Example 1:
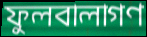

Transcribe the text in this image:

ফুলবালাগণ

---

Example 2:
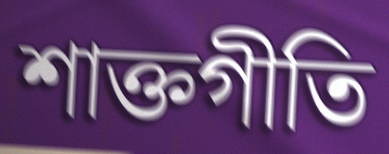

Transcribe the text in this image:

শাক্তগীতি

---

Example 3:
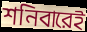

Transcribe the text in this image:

শনিবারেই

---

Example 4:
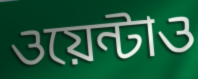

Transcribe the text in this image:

ওয়েন্টাও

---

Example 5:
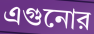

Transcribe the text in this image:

এগুনোর